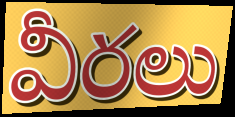
వీరలు